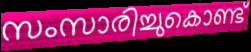
സംസാരിച്ചുകൊണ്ട്